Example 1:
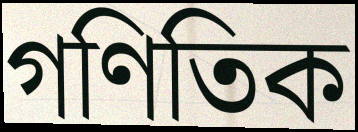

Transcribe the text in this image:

গণিতিক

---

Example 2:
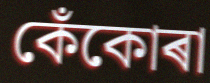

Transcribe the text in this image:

কেঁকোৰা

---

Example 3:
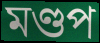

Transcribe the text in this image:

মণ্ডপ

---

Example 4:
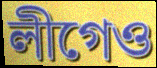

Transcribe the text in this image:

লীগেও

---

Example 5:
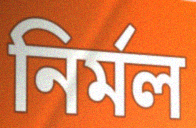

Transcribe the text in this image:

নিৰ্মল